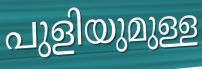
പുളിയുമുള്ള